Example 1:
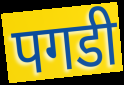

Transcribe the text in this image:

पगडी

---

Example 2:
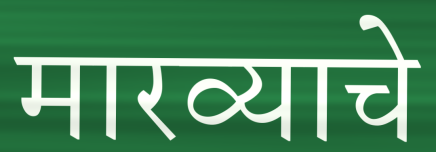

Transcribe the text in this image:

मारव्याचे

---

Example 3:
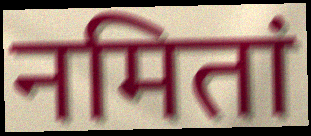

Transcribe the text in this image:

नमितां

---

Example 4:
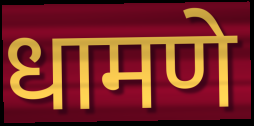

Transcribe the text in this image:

धामणे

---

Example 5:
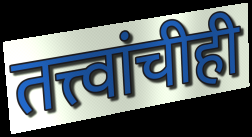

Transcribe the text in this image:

तत्त्वांचीही